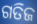
ଗତିଜ